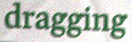
dragging